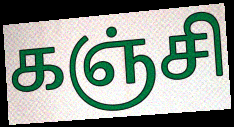
கஞ்சி